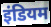
इंडियम